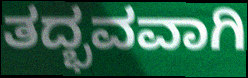
ತದ್ಭವವಾಗಿ